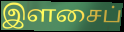
இளசைப்